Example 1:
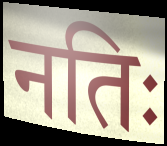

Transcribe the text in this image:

नतिः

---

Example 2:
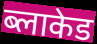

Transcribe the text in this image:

ब्लाकेड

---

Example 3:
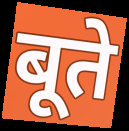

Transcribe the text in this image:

बूते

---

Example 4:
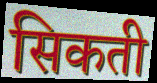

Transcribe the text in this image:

सिकती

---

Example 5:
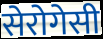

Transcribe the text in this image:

सेरोगेसी